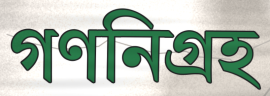
গণনিগ্রহ